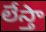
లేస్తా